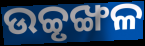
ଉଚ୍ଚୃଙ୍ଖଳ